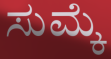
ಸುಮ್ಕೆ